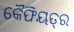
କୈଫିୟତ୍‌ର